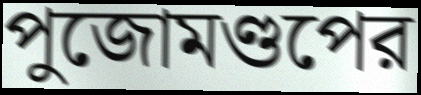
পুজোমণ্ডপের